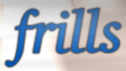
frills